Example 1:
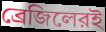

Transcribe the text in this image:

ব্রেজিলেরই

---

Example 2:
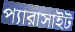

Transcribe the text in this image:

প্যারাসাইট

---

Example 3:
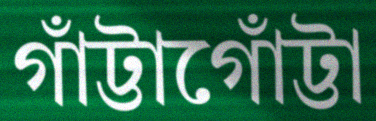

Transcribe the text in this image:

গাঁট্টাগোঁট্টা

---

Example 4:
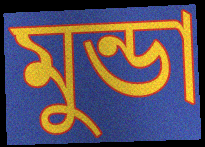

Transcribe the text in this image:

মুন্ডা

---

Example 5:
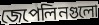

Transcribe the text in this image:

জেপেলিনগুলো